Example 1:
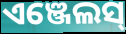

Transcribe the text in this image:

ଏଞ୍ଜେଲସ୍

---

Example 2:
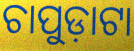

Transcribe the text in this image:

ଚାପୁଡ଼ାଟା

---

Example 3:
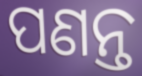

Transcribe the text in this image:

ପଣନ୍ତ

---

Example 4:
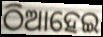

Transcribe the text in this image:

ଠିଆହେଇ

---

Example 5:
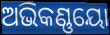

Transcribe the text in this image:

ଅଭିକଣ୍ଣୟୋ